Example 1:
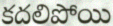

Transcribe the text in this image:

కదలిపోయి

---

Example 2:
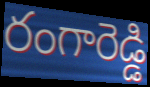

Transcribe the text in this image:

రంగారెడ్డి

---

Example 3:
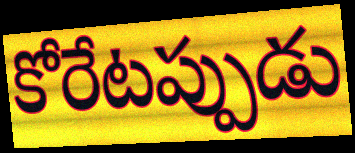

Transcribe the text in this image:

కోరేటప్పుడు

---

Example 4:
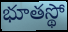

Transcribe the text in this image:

భూతస్థో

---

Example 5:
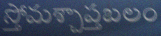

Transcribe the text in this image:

స్తోమశ్చాప్తబలం